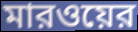
মারওয়ের